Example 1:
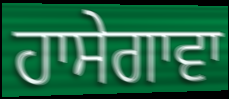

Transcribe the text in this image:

ਹਾਸੇਗਾਵਾ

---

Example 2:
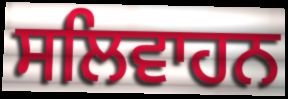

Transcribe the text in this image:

ਸਲਿਵਾਹਨ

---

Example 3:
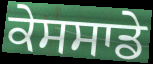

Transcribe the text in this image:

ਕੇਸਸਾਡੇ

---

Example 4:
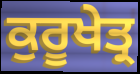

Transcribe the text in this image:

ਕੁਰੂਖੇਤ੍ਰ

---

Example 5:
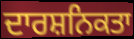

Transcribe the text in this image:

ਦਾਰਸ਼ਨਿਕਤਾ